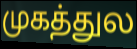
முகத்துல